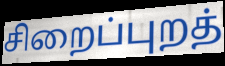
சிறைப்புறத்